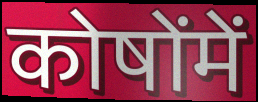
कोषोंमें